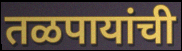
तळपायांची